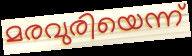
മരവുരിയെന്ന്